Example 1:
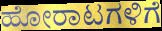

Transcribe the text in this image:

ಹೋರಾಟಗಳಿಗೆ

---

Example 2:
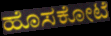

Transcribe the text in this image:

ಹೊಸಕೋಟೆ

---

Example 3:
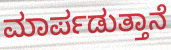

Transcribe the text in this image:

ಮಾರ್ಪಡುತ್ತಾನೆ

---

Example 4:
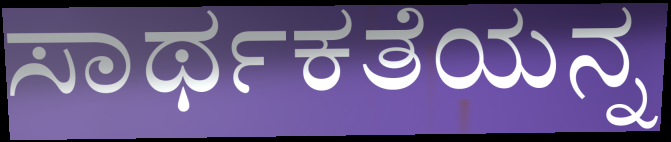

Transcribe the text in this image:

ಸಾರ್ಥಕತೆಯನ್ನ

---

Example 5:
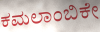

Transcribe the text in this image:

ಕಮಲಾಂಬಿಕೇ